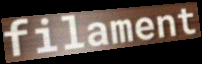
filament